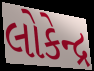
લોકેન્દ્ર